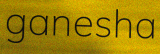
ganesha